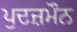
ਪੁਦਜ਼ਮੌਨ